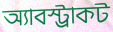
অ্যাবস্ট্রাকট